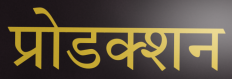
प्रोडक्‍शन